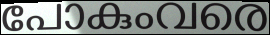
പോകുംവരെ